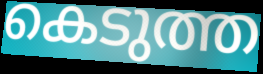
കെടുത്ത